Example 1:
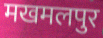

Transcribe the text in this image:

मखमलपुर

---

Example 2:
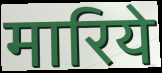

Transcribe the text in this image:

मारिये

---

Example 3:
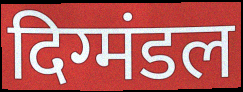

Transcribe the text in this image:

दिग्मंडल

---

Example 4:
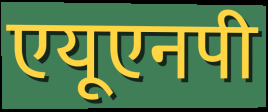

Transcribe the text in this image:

एयूएनपी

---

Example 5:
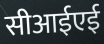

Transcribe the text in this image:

सीआईएई